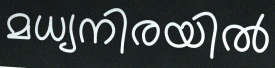
മധ്യനിരയിൽ